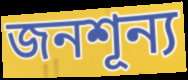
জনশূন্য